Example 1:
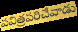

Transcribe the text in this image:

పవిత్రపరిచేవాడు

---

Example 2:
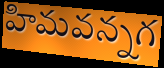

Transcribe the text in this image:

హిమవన్నగ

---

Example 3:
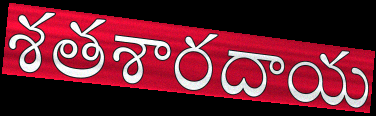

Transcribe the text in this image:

శతశారదాయ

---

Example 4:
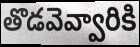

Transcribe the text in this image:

తొడవెవ్వారికి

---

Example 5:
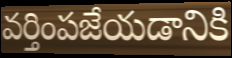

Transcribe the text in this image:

వర్తింపజేయడానికి